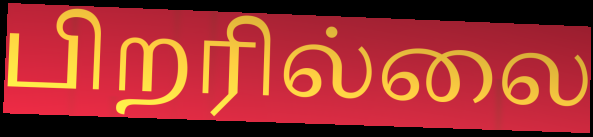
பிறரில்லை